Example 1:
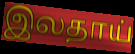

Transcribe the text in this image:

இலதாய்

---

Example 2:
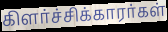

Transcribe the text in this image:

கிளர்ச்சிக்காரர்கள்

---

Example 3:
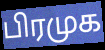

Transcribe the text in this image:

பிரமுக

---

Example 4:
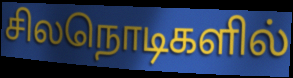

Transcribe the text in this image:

சிலநொடிகளில்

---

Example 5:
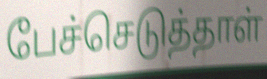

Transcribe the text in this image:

பேச்செடுத்தாள்